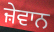
ਜ਼ੇਵਾਨ